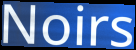
Noirs